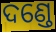
ଦଣ୍ଡେ